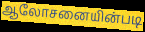
ஆலோசனையின்படி